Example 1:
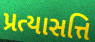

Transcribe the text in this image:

પ્રત્યાસત્તિ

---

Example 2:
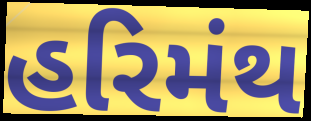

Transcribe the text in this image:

હરિમંથ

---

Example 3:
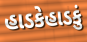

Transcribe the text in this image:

હાડકેહાડકું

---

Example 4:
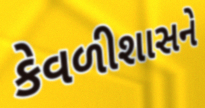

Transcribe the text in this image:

કેવળીશાસને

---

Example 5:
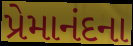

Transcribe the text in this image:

પ્રેમાનંદના